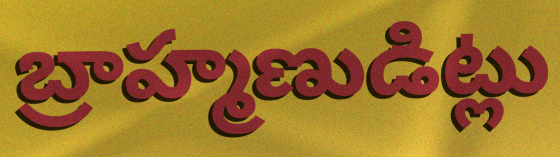
బ్రాహ్మణుడిట్లు